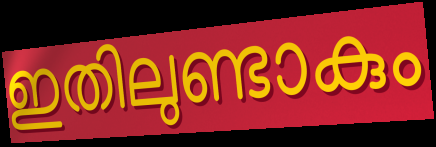
ഇതിലുണ്ടാകും